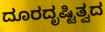
ದೂರದೃಷ್ಟಿತ್ವದ